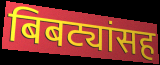
बिबट्यांसह